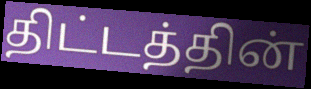
திட்டத்தின்